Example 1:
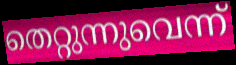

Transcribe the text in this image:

തെറ്റുന്നുവെന്ന്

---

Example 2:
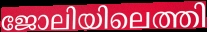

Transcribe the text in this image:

ജോലിയിലെത്തി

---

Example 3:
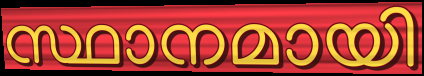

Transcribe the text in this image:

സ്ഥാനമായി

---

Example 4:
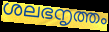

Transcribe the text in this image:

ശലഭനൃത്തം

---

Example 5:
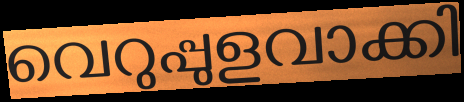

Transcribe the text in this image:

വെറുപ്പുളവാക്കി